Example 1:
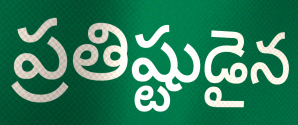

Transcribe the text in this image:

ప్రతిష్టుడైన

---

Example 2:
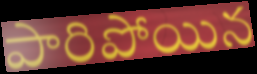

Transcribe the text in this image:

పారిపోయిన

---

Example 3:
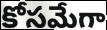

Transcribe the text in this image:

కోసమేగా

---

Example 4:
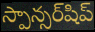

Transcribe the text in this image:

స్పాన్సర్‌షిప్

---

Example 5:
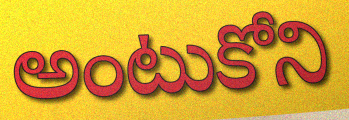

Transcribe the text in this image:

అంటుకోని